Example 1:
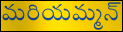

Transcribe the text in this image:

మరియమ్మన్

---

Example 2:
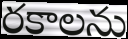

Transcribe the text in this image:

రకాలను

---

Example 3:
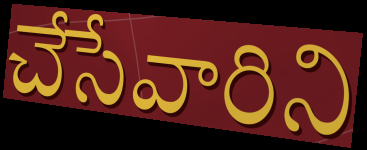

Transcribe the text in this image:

చేసేవారిని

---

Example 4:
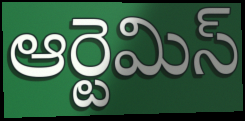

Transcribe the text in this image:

ఆర్టెమిస్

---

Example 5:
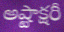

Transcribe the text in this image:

అష్టాక్షరీ